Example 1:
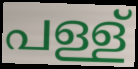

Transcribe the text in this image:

പള്ള്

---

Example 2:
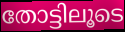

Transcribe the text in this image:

തോട്ടിലൂടെ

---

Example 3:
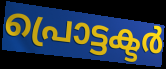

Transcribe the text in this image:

പ്രൊട്ടക്ടർ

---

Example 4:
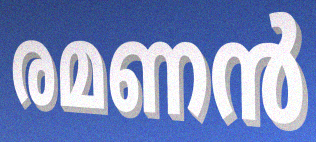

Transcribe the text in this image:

രമണൻ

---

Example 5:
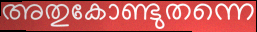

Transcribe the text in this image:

അതുകോണ്ടുതന്നെ